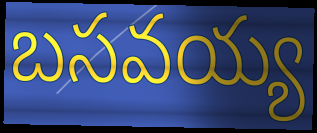
బసవయ్య